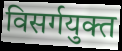
विसर्गयुक्त